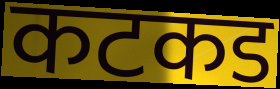
कटकड